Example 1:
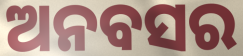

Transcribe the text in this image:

ଅନବସର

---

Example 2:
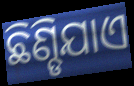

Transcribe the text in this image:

ଛିଣ୍ଡିଯାଏ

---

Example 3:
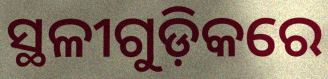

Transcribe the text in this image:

ସ୍ଥଳୀଗୁଡ଼ିକରେ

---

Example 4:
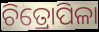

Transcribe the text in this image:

ଚିତ୍ରୋପିଳା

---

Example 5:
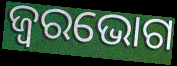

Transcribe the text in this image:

ଜ୍ୱରଭୋଗ